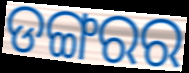
ଡଙ୍ଗରର